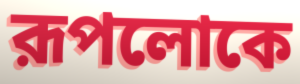
রূপলোকে